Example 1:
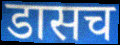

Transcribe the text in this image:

डासच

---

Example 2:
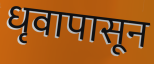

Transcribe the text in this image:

धृवापासून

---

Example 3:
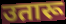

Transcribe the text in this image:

उतारू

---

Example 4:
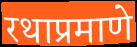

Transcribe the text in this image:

रथाप्रमाणे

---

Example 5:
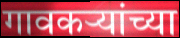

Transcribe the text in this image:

गावकऱ्यांच्या